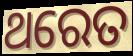
ଥରେତ